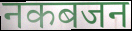
नकबजन